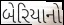
બેરિયાનો